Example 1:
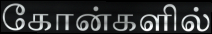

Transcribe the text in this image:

கோன்களில்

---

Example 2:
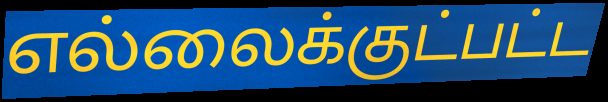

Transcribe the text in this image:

எல்லைக்குட்பட்ட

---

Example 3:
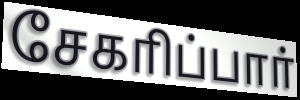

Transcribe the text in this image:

சேகரிப்பார்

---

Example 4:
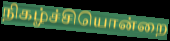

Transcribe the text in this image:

நிகழ்ச்சியொன்றை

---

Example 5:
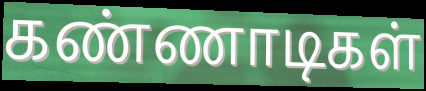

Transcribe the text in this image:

கண்ணாடிகள்